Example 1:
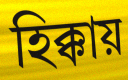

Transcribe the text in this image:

হিক্কায়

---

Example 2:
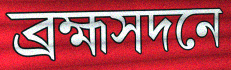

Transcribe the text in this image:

ব্রহ্মসদনে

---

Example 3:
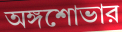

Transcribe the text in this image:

অঙ্গশোভার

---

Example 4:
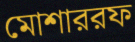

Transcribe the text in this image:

মোশাররফ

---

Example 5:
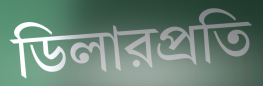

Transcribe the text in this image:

ডিলারপ্রতি